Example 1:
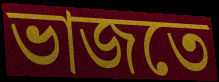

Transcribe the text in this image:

ভাজতে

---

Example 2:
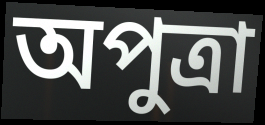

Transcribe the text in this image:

অপুত্রা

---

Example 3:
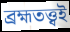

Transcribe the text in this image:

ব্রহ্মতত্ত্বই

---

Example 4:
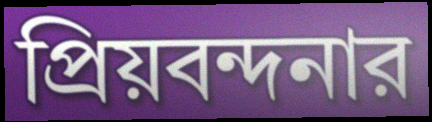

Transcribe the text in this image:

প্রিয়বন্দনার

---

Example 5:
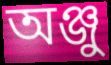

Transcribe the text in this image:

অঞ্জু